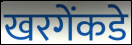
खरगेंकडे